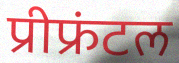
प्रीफ्रंटल